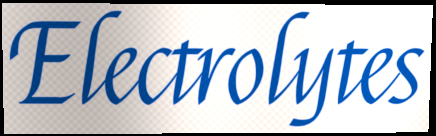
Electrolytes